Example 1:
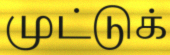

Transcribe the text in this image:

முட்டுக்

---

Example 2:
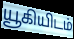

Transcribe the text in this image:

யூகியிடம்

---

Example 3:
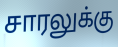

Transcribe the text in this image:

சாரலுக்கு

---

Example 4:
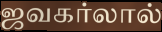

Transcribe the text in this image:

ஜவகர்லால்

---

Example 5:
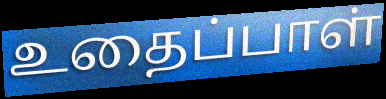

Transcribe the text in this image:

உதைப்பாள்